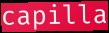
capilla